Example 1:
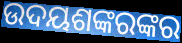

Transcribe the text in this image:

ଉଦୟଶଙ୍କରଙ୍କର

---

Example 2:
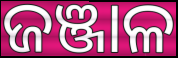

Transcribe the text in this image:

ଜଞ୍ଜାଳ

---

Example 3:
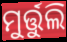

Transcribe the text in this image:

ମୁର୍ତ୍ତୁଲି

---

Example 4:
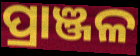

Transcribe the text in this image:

ପ୍ରାଞ୍ଜଳ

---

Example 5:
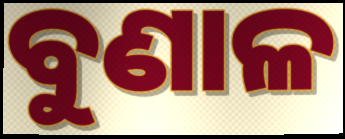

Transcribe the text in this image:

ବୁଣାଳ